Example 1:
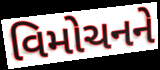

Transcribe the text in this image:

વિમોચનને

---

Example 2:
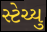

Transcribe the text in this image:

સ્ટેચ્યુ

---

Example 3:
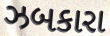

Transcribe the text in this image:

ઝબકારા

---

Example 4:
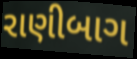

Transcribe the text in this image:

રાણીબાગ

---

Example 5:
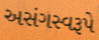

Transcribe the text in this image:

અસંગસ્વરૂપે